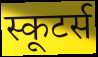
स्कूटर्स